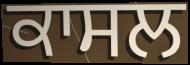
ਕਾਸਲ